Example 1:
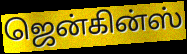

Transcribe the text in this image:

ஜென்கின்ஸ்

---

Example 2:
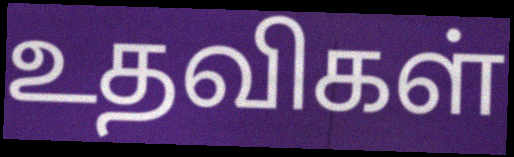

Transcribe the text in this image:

உதவிகள்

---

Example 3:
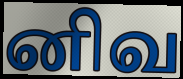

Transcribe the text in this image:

னிவ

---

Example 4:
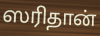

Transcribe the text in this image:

ஸரிதான்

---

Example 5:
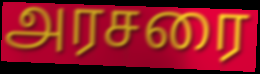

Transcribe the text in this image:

அரசரை